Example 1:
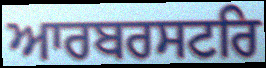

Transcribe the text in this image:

ਆਰਬਰਸਟਰਿ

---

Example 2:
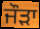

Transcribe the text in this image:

ਜੌੜਾ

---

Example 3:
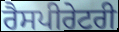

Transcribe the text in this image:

ਰੈਸਪੀਰੇਟਰੀ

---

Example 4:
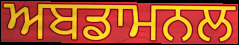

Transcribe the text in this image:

ਅਬਡਾਮਨਲ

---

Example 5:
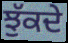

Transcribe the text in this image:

ਝੁੱਕਦੇ